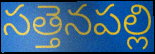
సత్తెనపల్లి